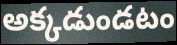
అక్కడుండటం